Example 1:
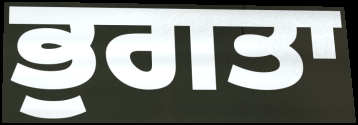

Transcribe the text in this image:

ਭੁਗਤਾ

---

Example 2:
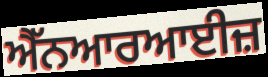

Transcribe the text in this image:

ਐੱਨਆਰਆਈਜ਼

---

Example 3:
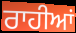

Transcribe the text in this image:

ਰਾਹੀਆਂ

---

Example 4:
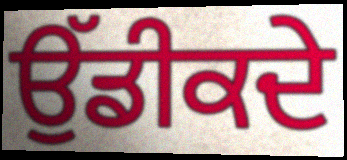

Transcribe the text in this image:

ਉੱਡੀਕਦੇ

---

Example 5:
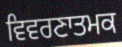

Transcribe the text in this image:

ਵਿਵਰਣਾਤਮਕ